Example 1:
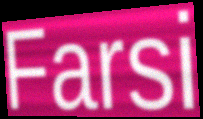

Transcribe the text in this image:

Farsi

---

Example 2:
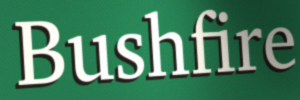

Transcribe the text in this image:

Bushfire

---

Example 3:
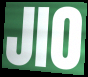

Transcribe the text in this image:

JIO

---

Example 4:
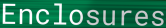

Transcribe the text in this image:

Enclosures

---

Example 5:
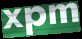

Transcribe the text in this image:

xpm